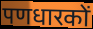
पणधारकों